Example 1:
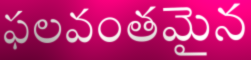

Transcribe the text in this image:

ఫలవంతమైన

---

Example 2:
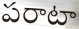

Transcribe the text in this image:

పరాటా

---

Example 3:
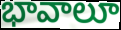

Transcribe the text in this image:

భావాలూ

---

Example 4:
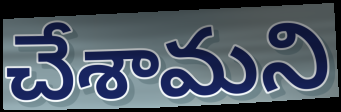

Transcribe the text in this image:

చేశామని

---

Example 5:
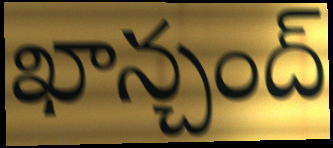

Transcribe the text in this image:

ఖాన్చంద్